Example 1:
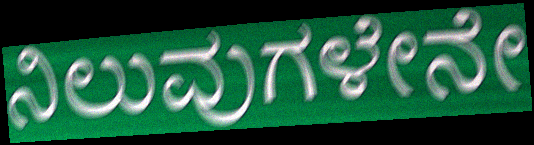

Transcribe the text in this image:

ನಿಲುವುಗಳೇನೇ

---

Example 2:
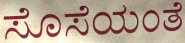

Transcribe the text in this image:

ಸೊಸೆಯಂತೆ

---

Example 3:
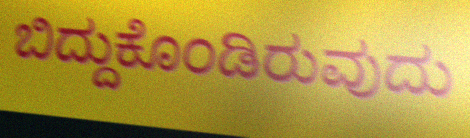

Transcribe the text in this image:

ಬಿದ್ದುಕೊಂಡಿರುವುದು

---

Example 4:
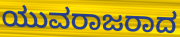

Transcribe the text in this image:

ಯುವರಾಜರಾದ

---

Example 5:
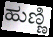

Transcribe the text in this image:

ಹುಣ್ಣಿ